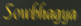
Sowbhagya